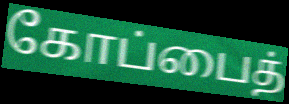
கோப்பைத்